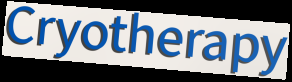
Cryotherapy